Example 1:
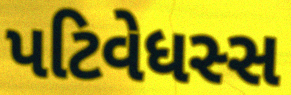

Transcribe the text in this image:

પટિવેધસ્સ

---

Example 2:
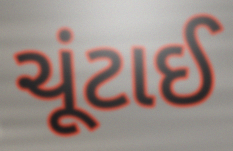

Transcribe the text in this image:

ચૂંટાઈ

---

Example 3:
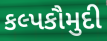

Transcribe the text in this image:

કલ્પકૌમુદી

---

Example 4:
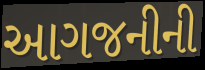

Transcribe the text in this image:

આગજનીની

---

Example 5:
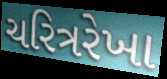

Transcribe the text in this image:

ચરિત્રરેખા